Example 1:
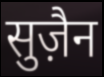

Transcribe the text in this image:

सुज़ैन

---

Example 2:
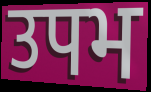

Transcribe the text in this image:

उपभ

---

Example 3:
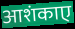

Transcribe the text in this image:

आशंकाए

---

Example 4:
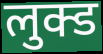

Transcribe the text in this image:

लुक्ड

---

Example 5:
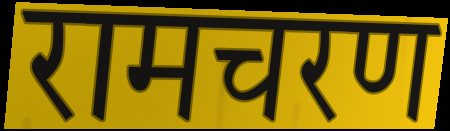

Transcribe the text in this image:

रामचरण